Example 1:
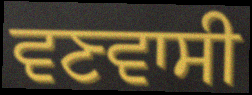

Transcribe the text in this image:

ਵਣਵਾਸੀ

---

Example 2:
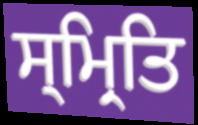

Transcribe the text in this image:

ਸ੍ਮ੍ਰਿਤਿ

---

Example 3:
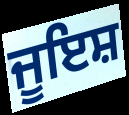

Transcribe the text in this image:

ਜੂਇਸ਼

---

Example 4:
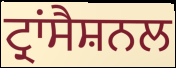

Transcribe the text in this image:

ਟ੍ਰਾਂਸੈਸ਼ਨਲ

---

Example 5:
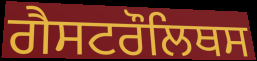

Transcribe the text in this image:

ਗੈਸਟਰੌਲਿਥਸ